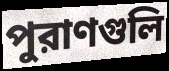
পুরাণগুলি